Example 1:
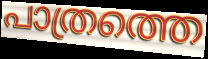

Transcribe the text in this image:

പാത്രത്തെ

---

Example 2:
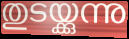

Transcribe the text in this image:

തുടയ്ക്കുന്നു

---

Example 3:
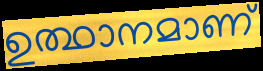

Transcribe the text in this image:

ഉത്ഥാനമാണ്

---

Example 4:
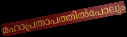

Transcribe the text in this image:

മഹാപ്രതാപത്തിൽപോലും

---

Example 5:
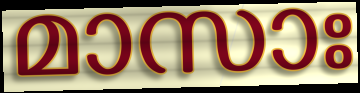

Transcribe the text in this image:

മാസാഃ